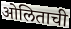
ओलिताची